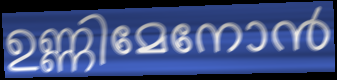
ഉണ്ണിമേനോൻ